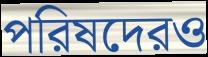
পরিষদেরও